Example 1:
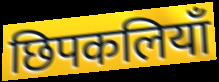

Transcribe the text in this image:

छिपकलियाँ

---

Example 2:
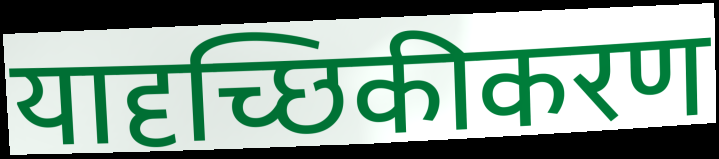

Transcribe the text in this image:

यादृच्छिकीकरण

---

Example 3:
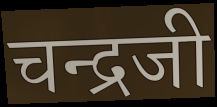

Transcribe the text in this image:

चन्द्रजी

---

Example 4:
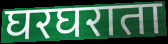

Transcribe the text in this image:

घरघराता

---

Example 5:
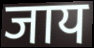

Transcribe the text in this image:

जाय